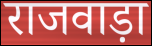
राजवाड़ा